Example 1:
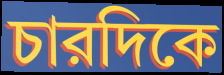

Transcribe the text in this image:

চারদিকে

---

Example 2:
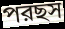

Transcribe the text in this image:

পরছস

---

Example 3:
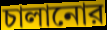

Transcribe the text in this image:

চালানোর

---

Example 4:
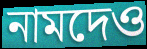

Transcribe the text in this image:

নামদেও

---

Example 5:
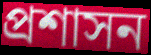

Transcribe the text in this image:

প্রশাসন